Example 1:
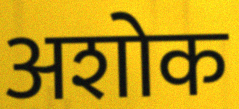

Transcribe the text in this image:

अशोक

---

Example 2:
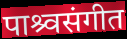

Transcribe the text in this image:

पाश्र्वसंगीत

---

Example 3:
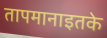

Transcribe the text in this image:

तापमानाइतके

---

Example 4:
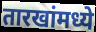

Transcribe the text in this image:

तारखांमध्ये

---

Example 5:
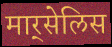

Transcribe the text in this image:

मार्सेलिस